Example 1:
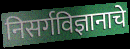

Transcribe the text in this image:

निसर्गविज्ञानाचे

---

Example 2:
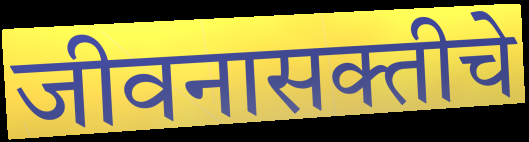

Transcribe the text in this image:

जीवनासक्तीचे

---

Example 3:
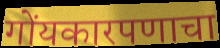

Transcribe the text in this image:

गोंयकारपणाचा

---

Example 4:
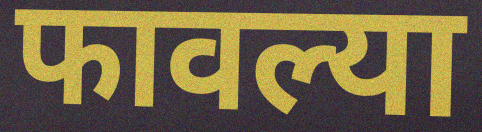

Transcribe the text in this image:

फावल्या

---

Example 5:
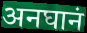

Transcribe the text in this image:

अनघानं